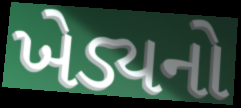
ખેડ્યનો